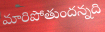
మారిపోతుందన్నది